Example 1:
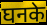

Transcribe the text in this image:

घनके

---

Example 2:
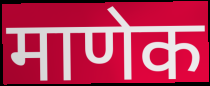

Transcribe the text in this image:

माणेक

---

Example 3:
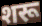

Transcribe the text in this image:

शरू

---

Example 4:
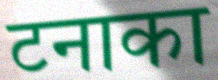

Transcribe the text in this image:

टनाका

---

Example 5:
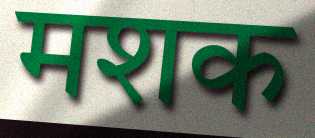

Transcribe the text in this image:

मशक